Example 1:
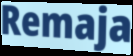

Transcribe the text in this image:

Remaja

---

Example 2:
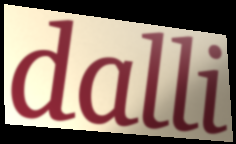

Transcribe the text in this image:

dalli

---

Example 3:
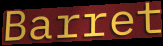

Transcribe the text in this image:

Barret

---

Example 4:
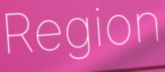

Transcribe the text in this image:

Region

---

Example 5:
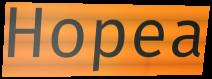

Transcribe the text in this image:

Hopea